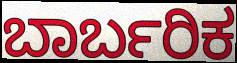
ಬಾರ್ಬರಿಕ